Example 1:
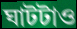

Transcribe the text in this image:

ঘাটটাও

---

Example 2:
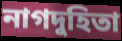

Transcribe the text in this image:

নাগদুহিতা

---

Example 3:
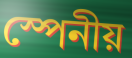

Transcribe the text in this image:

স্পেনীয়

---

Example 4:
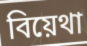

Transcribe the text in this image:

বিয়েথা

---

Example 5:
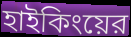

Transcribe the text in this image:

হাইকিংয়ের